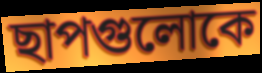
ছাপগুলোকে